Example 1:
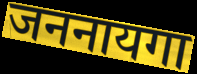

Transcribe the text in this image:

जननायगा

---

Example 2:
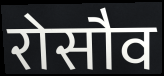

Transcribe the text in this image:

रोसौव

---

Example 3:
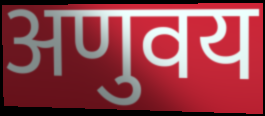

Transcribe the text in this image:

अणुवय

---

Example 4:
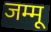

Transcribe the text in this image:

जम्‍मू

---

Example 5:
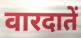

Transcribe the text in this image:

वारदातें